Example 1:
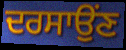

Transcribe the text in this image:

ਦਰਸਾਉਂਣ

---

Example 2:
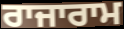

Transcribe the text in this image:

ਰਾਜਾਰਾਮ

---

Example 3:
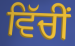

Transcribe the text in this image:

ਵਿੱਚੀਂ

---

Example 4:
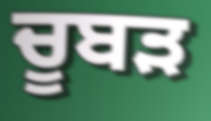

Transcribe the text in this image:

ਚੂਬੜ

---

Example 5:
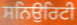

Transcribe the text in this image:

ਸਨਿਉਰਿਟੀ